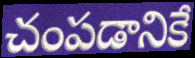
చంపడానికే